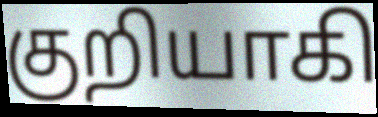
குறியாகி